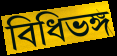
বিধিভঙ্গ